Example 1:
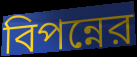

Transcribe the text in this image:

বিপন্নের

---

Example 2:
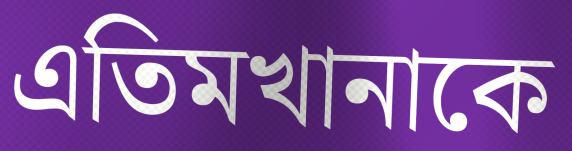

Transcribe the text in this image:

এতিমখানাকে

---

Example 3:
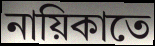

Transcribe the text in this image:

নায়িকাতে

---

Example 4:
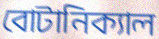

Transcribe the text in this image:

বোটানিক্যাল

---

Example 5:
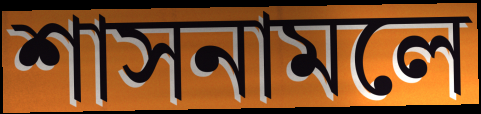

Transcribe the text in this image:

শাসনামলে